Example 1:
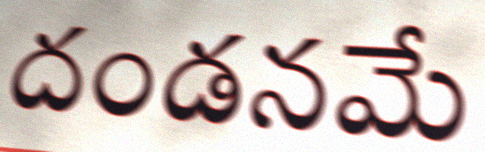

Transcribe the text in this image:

దండనమే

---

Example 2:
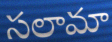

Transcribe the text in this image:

సలామా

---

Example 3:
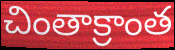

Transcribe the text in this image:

చింతాక్రాంత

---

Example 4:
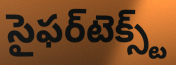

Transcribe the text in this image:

సైఫర్‌టెక్స్ట్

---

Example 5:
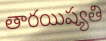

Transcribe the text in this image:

తారయిష్యతి